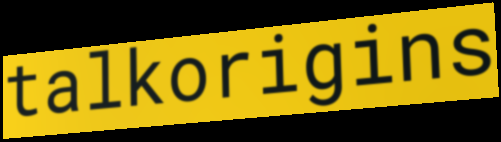
talkorigins